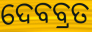
ଦେବବ୍ରତ